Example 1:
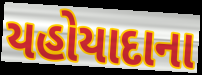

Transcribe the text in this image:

યહોયાદાના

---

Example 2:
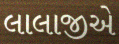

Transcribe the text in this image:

લાલાજીએ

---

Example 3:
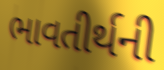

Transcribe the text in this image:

ભાવતીર્થની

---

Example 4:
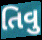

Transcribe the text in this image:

તિવુ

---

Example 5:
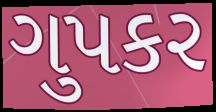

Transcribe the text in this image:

ગુપકર